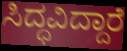
ಸಿದ್ಧವಿದ್ದಾರೆ